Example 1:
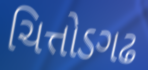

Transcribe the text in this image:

ચિત્તોડગઢ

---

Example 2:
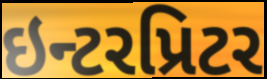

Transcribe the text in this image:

ઇન્ટરપ્રિટર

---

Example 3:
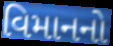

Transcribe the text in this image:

વિમાનનો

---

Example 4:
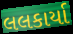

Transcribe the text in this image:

લલકાર્યા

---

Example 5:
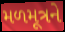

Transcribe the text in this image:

મળમૂત્રને